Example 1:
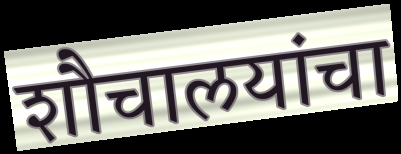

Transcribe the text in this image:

शौचालयांचा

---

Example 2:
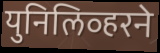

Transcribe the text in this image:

युनिलिव्हरने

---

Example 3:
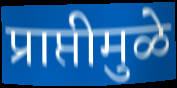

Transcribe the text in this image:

प्राप्तीमुळे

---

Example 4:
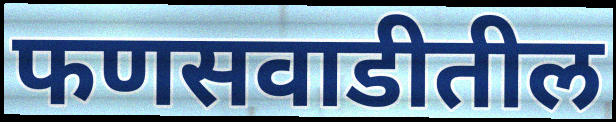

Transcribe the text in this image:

फणसवाडीतील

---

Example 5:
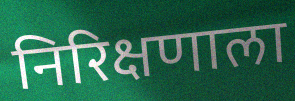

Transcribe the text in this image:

निरिक्षणाला